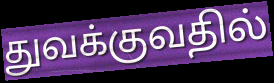
துவக்குவதில்